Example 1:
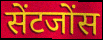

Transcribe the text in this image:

सेंटजोंस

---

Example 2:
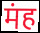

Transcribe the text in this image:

मंह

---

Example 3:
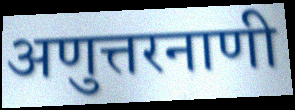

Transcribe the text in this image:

अणुत्तरनाणी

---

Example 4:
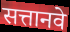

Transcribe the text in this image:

सत्तानवे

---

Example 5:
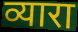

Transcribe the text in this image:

व्यारा